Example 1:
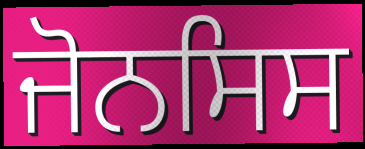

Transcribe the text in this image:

ਜੋਨਸਿਸ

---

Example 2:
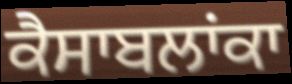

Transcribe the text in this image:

ਕੈਸਾਬਲਾਂਕਾ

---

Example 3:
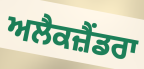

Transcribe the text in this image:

ਅਲੈਕਜ਼ੈਂਡਰਾ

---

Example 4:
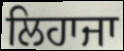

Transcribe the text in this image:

ਲਿਹਾਜਾ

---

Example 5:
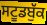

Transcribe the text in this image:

ਸਟੂਡਬੁੱਕ